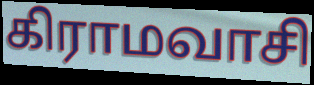
கிராமவாசி